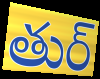
తుర్